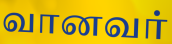
வானவர்